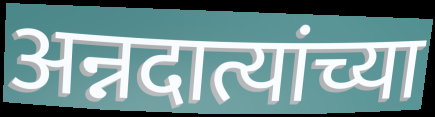
अन्नदात्यांच्या